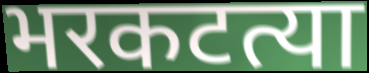
भरकटत्या